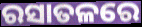
ରସାତଳରେ